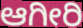
ಆಗೀರಿ